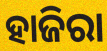
ହାଜିରା